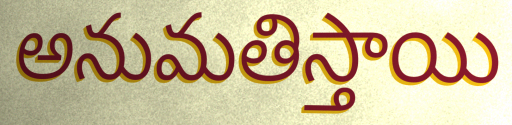
అనుమతిస్తాయి